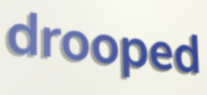
drooped